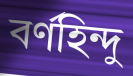
বৰ্ণহিন্দু